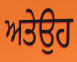
ਅਤੇਉਹ